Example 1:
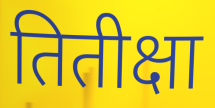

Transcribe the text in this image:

तितीक्षा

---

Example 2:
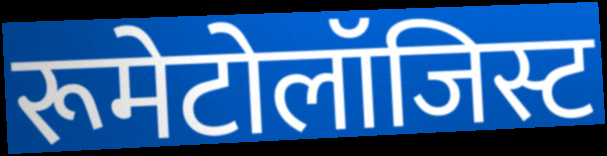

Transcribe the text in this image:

रूमेटोलॉजिस्ट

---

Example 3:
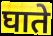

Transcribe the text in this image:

घाते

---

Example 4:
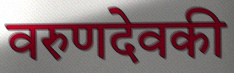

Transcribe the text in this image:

वरुणदेवकी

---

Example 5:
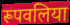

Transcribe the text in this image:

रूपवलिया